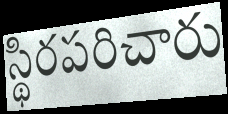
స్థిరపరిచారు